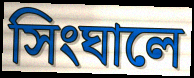
সিংঘালে